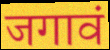
जगावं